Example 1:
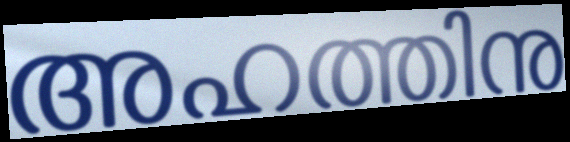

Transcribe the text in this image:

അഹത്തിനു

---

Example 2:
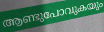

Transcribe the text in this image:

ആണ്ടുപോവുകയും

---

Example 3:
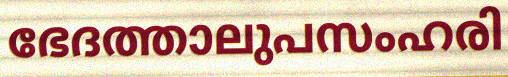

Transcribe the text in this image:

ഭേദത്താലുപസംഹരി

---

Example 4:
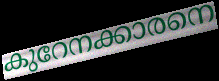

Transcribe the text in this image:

കുറേനക്കാരനെ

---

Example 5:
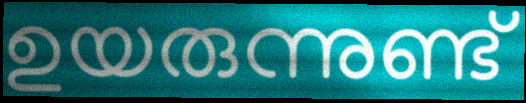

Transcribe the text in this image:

ഉയരുന്നുണ്ട്